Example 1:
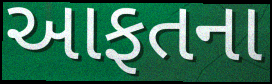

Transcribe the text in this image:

આફતના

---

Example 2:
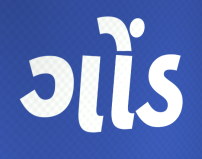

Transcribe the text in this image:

ગોંડ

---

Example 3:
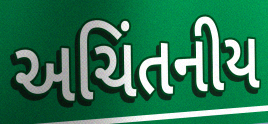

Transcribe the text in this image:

અચિંતનીય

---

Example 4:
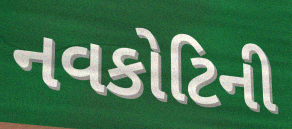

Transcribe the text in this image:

નવકોટિની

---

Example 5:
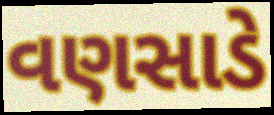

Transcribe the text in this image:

વણસાડે